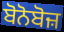
ਬੋਨੋਬੋਜ਼